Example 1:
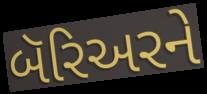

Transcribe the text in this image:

બૅરિઅરને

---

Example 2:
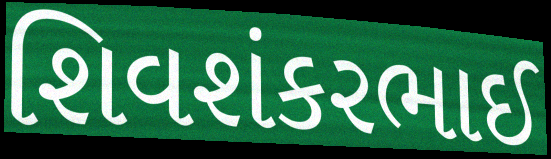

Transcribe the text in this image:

શિવશંકરભાઈ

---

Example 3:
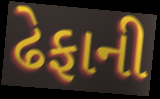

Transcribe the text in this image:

ઢેફાની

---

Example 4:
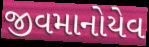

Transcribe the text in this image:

જીવમાનોયેવ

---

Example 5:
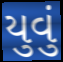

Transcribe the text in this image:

યુવું